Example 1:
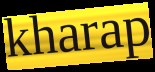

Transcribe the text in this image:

kharap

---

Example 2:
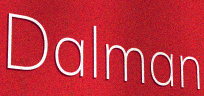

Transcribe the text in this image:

Dalman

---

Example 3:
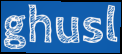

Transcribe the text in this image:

ghusl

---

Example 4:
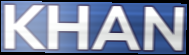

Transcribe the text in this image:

KHAN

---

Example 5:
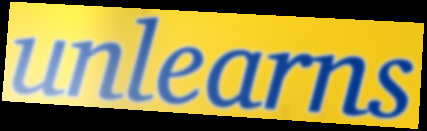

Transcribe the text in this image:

unlearns